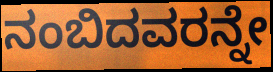
ನಂಬಿದವರನ್ನೇ